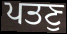
ਪਤਣੁ